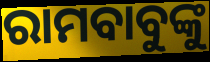
ରାମବାବୁଙ୍କୁ